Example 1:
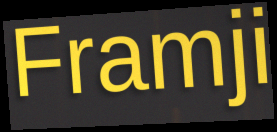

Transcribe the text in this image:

Framji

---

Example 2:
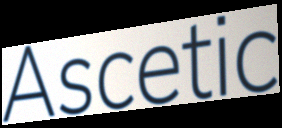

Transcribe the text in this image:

Ascetic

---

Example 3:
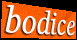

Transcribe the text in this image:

bodice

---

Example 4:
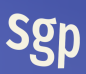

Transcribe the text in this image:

sgp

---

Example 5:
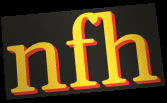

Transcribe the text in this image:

nfh